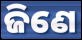
ଜିଣେ